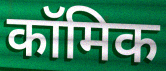
कॉमिक